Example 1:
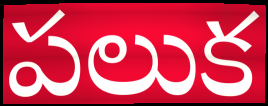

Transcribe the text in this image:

పలుక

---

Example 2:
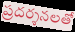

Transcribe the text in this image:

ప్రదర్శనలతో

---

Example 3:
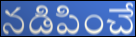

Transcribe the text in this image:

నడిపించే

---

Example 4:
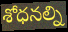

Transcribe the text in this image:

శోధనల్ని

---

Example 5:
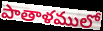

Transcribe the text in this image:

పాతాళములో